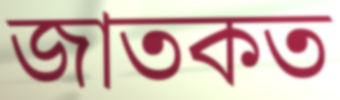
জাতকত